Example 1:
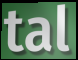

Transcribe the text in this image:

tal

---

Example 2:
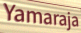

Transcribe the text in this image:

Yamaraja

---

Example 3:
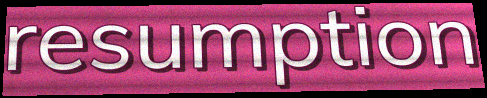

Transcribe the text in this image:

resumption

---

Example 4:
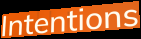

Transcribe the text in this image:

Intentions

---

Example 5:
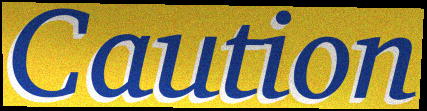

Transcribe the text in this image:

Caution